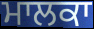
ਮਾਲਕਾ